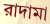
রাদামা